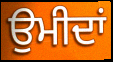
ਉਮੀਦਾਂ